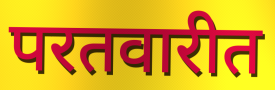
परतवारीत